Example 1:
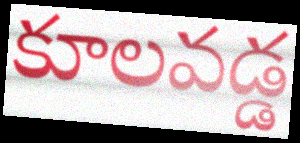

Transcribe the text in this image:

కూలవడ్డ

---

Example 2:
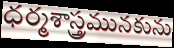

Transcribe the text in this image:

ధర్మశాస్త్రమునకును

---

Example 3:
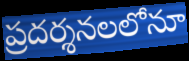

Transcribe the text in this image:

ప్రదర్శనలలోనూ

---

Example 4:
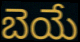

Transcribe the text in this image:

బెయే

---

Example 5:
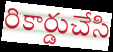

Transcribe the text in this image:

రికార్డుచేసి